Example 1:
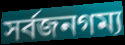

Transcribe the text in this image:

সর্বজনগম্য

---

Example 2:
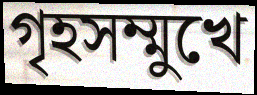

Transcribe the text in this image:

গৃহসম্মুখে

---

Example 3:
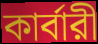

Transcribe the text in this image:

কার্বারী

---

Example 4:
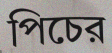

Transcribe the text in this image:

পিচের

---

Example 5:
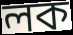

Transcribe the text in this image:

লক